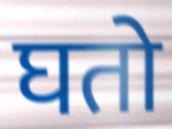
घतो